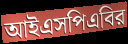
আইএসপিএবির